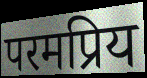
परमप्रिय